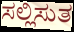
ಸಲ್ಲಿಸುತ